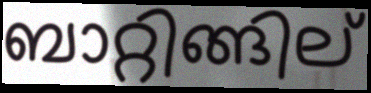
ബാറ്റിങ്ങില്